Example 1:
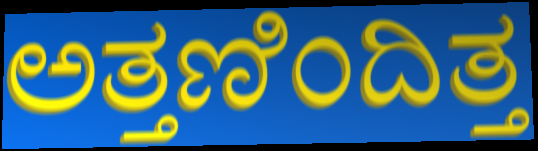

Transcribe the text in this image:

ಅತ್ತಣಿಂದಿತ್ತ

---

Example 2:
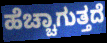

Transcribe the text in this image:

ಹೆಚ್ಚಾಗುತ್ತದೆ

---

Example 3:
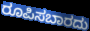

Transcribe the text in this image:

ರೂಪಿಸಬಾರದು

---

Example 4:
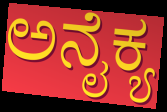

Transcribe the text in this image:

ಅನೈಕ್ಯ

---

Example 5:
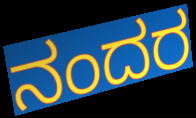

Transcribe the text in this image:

ನಂದರ